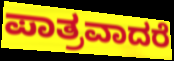
ಪಾತ್ರವಾದರೆ